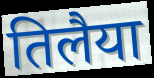
तिलैया